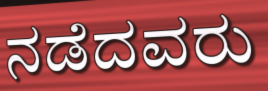
ನಡೆದವರು